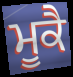
ਮੂਕੈ